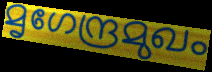
മൃഗേന്ദ്രമുഖം